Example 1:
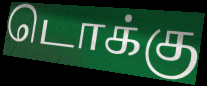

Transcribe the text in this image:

டொக்கு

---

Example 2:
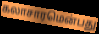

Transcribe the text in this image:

கலாசாரமென்பது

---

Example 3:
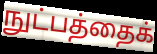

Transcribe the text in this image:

நுட்பத்தைக்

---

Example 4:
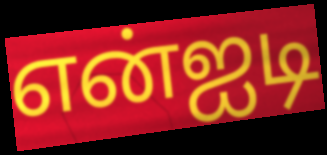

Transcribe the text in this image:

என்ஐடி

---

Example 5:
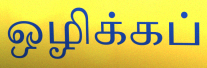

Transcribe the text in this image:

ஒழிக்கப்